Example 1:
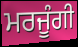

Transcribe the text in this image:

ਮਰਜੂੰਗੀ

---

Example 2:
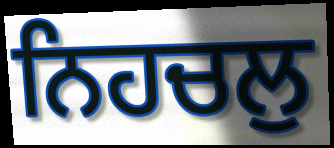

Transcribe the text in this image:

ਨਿਹਚਲੁ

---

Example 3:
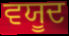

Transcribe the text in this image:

ਵਯੂਦ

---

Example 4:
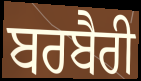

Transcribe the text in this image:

ਬਰਬੈਰੀ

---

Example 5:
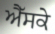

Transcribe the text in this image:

ਐੱਸਕੇ